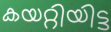
കയറ്റിയിട്ട